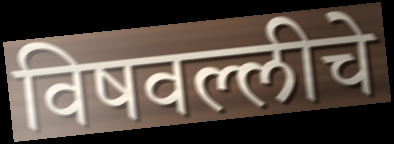
विषवल्लीचे